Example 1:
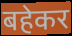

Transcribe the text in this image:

बहेकर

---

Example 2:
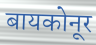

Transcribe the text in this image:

बायकोनूर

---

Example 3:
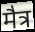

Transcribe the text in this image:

मैत्र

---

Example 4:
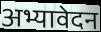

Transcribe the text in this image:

अभ्यावेदन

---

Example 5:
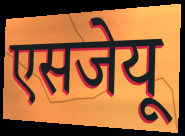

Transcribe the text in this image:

एसजेयू